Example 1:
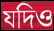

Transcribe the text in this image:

যদিও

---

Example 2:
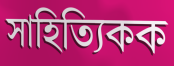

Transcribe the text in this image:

সাহিত্যিকক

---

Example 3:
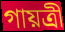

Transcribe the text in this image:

গায়ত্ৰী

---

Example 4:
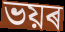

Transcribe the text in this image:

ভয়ৰ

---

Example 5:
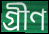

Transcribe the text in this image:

গ্ৰীণ